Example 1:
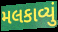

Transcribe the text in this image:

મલકાવ્યું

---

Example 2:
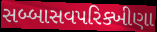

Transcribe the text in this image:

સબ્બાસવપરિક્ખીણા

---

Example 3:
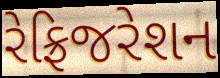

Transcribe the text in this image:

રેફ્રિજરેશન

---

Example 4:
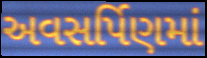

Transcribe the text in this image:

અવસર્પિણમાં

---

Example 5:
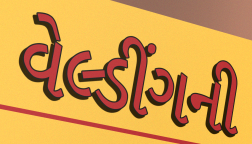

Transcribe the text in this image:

વેલ્ડીંગની